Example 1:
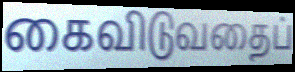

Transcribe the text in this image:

கைவிடுவதைப்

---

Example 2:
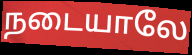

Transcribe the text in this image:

நடையாலே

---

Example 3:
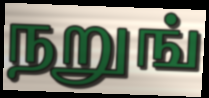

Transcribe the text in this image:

நறுங்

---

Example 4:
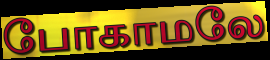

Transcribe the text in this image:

போகாமலே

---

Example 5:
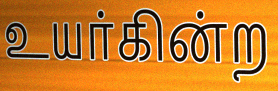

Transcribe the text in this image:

உயர்கின்ற